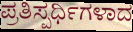
ಪ್ರತಿಸ್ಪರ್ಧಿಗಳಾದ